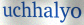
uchhalyo